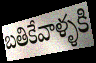
బతికేవాళ్ళకి